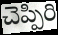
చెప్పిరి